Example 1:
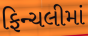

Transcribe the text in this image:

ફિન્ચલીમાં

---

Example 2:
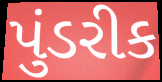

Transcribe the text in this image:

પુંડરીક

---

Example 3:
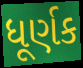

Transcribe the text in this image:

ધૂર્ણક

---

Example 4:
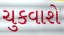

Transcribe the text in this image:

ચુકવાશે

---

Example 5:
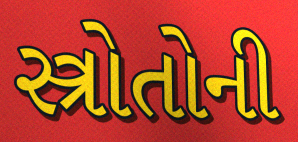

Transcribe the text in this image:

સ્ત્રોતોની